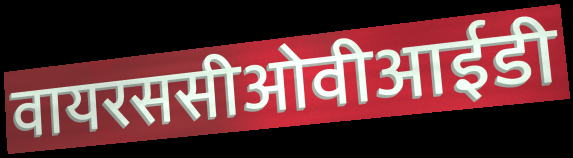
वायरससीओवीआईडी